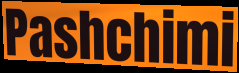
Pashchimi